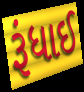
રૂંધાઈ